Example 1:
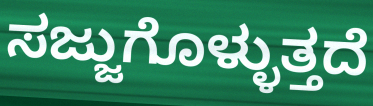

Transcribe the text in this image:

ಸಜ್ಜುಗೊಳ್ಳುತ್ತದೆ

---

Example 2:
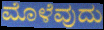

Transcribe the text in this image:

ಮೊಳೆವುದು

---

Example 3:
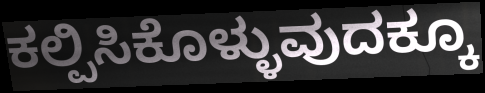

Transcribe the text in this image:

ಕಲ್ಪಿಸಿಕೊಳ್ಳುವುದಕ್ಕೂ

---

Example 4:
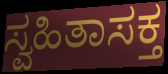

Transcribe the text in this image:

ಸ್ವಹಿತಾಸಕ್ತ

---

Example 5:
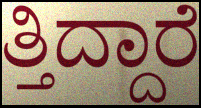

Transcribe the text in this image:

ತ್ತಿದ್ದಾರೆ